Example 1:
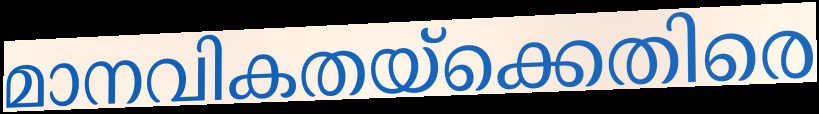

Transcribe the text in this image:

മാനവികതയ്ക്കെതിരെ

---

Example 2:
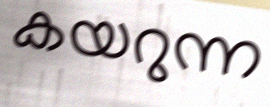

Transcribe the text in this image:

കയറുന്ന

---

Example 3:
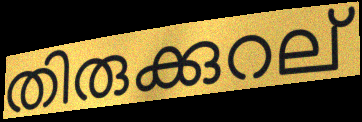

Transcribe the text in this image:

തിരുക്കുറല്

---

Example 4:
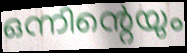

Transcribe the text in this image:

ഒന്നിന്റെയും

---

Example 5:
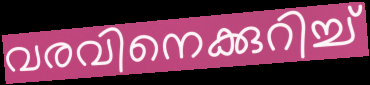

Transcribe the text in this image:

വരവിനെക്കുറിച്ച്